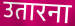
उतारना